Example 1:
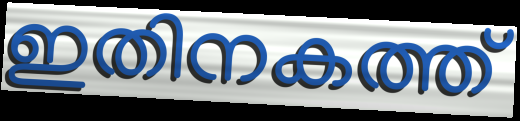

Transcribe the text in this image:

ഇതിനകത്ത്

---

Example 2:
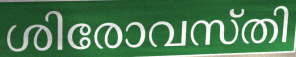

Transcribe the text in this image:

ശിരോവസ്തി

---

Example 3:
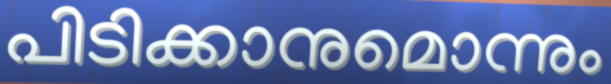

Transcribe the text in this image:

പിടിക്കാനുമൊന്നും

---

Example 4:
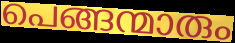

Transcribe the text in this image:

പെങ്ങന്മാരും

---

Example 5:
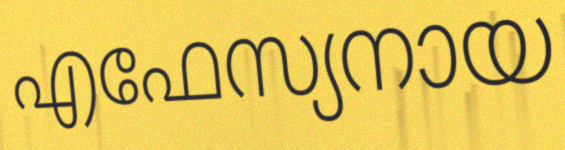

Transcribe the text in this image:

എഫേസ്യനായ